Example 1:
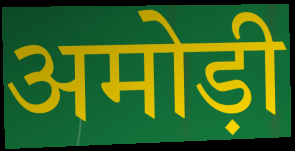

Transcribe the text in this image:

अमोड़ी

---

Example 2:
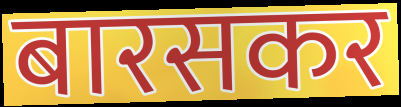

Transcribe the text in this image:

बारसकर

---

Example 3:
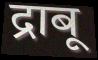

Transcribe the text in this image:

द्राबू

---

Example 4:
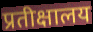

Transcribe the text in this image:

प्रतीक्षालय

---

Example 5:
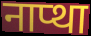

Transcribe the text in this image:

नाप्था